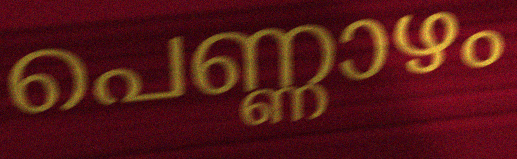
പെണ്ണാഴം